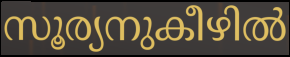
സൂര്യനുകീഴിൽ